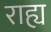
राह्य